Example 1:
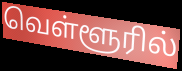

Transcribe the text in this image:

வெள்ளூரில்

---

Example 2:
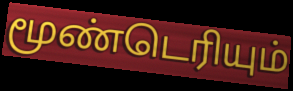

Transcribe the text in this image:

மூண்டெரியும்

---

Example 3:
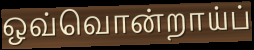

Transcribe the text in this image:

ஒவ்வொன்றாய்ப்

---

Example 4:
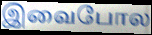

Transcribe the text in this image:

இவைபோல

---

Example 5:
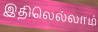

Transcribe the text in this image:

இதிலெல்லாம்